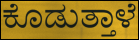
ಕೊಡುತ್ತಾಳೆ